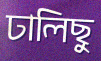
ঢালিছু